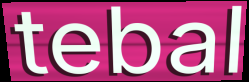
tebal